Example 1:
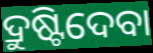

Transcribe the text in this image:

ଦ୍ରୁଷ୍ଟିଦେବା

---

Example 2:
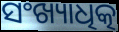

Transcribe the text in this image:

ସଂଖ୍ୟାଧିତ୍କ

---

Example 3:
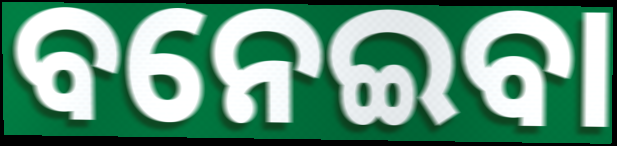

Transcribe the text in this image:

ବନେଇବା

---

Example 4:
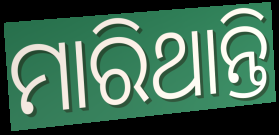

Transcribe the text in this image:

ମାରିଥାନ୍ତି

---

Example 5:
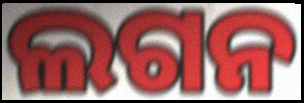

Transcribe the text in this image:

ଲଗନ